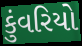
કુંવરિયો